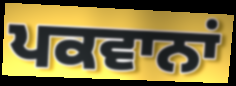
ਪਕਵਾਨਾਂ